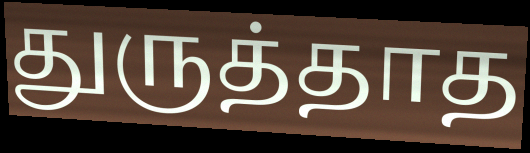
துருத்தாத